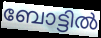
ബോട്ടിൽ